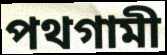
পথগামী